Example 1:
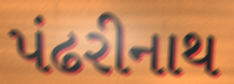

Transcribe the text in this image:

પંઢરીનાથ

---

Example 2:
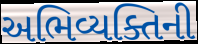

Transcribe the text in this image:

અભિવ્યક્તિની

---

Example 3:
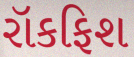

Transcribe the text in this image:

રૉકફિશ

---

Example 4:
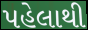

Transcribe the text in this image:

પહેલાથી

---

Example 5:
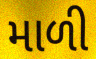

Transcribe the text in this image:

માળી